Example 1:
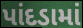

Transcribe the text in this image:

પાંદડામાં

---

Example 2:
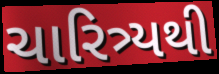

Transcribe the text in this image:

ચારિત્ર્યથી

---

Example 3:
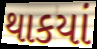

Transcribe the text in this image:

થાકયાં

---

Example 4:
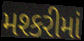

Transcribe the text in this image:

મશ્કરીમાં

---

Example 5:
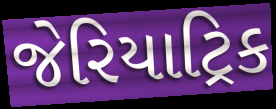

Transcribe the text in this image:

જેરિયાટ્રિક